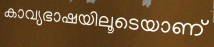
കാവ്യഭാഷയിലൂടെയാണ്